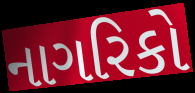
નાગરિકો